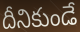
దీనికుండే